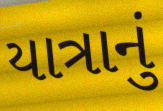
યાત્રાનું